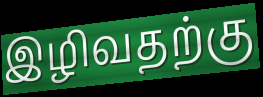
இழிவதற்கு